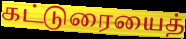
கட்டுரையைத்